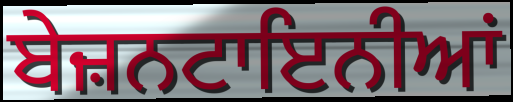
ਬੇਜ਼ਨਟਾਇਨੀਆਂ